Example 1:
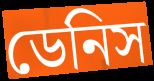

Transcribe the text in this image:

ডেনিস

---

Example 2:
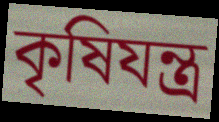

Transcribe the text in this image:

কৃষিযন্ত্র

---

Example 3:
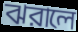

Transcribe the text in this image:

ঝরালে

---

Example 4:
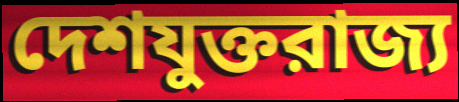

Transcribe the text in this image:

দেশযুক্তরাজ্য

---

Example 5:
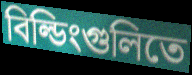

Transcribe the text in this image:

বিল্ডিংগুলিতে